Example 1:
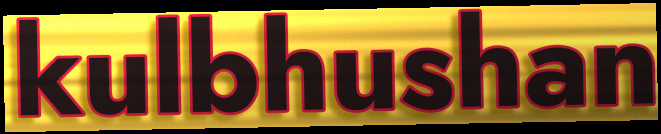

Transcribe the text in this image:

kulbhushan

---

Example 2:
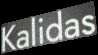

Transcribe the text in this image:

Kalidas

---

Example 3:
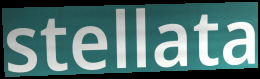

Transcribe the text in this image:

stellata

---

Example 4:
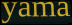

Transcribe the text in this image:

yama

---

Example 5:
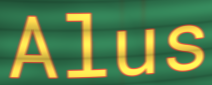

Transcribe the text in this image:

Alus